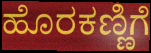
ಹೊರಕಣ್ಣಿಗೆ